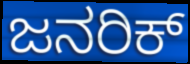
ಜನರಿಕ್